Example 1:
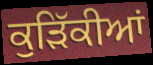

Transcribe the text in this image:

ਕੁੜਿੱਕੀਆਂ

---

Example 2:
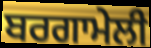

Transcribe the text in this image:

ਬਰਗਾਮੇਲੀ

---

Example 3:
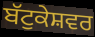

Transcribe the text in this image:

ਬੱਟੁਕੇਸ਼ਵਰ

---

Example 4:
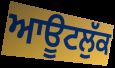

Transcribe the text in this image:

ਆਊਟਲੁੱਕ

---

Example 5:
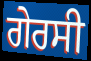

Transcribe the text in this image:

ਗੇਰਸੀ